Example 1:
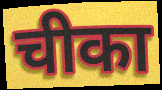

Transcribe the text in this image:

चीका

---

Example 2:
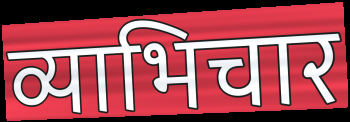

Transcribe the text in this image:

व्याभिचार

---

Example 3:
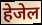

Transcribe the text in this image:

हेजेल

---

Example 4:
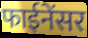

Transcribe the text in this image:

फाईनेंसर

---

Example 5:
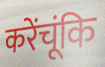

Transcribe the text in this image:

करेंचूंकि